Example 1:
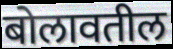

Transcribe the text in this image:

बोलावतील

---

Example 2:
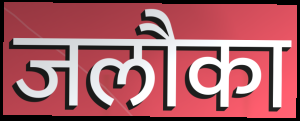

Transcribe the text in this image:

जलौका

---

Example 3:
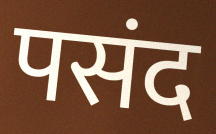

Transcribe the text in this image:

पसंद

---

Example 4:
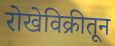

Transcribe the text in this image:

रोखेविक्रीतून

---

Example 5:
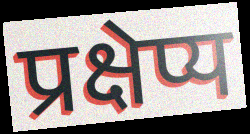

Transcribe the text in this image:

प्रक्षेप्य